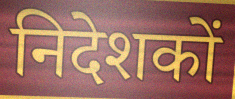
निदेशकों